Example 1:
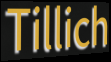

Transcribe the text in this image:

Tillich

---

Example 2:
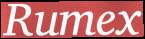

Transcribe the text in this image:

Rumex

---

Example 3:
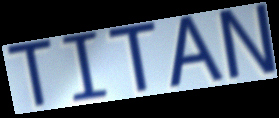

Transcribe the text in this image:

TITAN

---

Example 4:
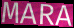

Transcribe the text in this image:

MARA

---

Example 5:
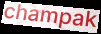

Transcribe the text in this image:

champak